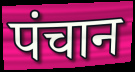
पंचान